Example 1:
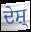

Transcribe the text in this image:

ਦੇਸ਼੍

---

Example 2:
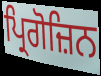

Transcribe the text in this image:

ਪ੍ਰਿਗੋਜ਼ਿਨ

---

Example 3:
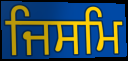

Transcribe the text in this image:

ਜਿਸਮਿ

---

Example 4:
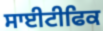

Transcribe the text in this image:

ਸਾਈਟੀਫਿਕ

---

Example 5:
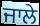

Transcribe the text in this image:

ਜਾਲੇ